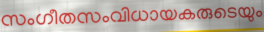
സംഗീതസംവിധായകരുടെയും